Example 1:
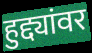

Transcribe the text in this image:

हुद्द्यांवर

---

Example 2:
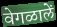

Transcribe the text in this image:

वेगळालें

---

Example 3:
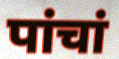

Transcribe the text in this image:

पांचां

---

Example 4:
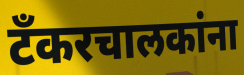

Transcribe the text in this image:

टँकरचालकांना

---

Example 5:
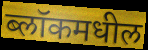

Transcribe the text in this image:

ब्लॉकमधील